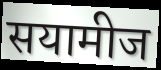
सयामीज